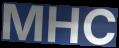
MHC